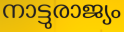
നാട്ടുരാജ്യം